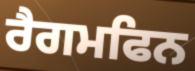
ਰੈਗਮਫਿਨ